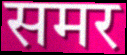
समर